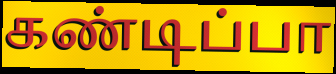
கண்டிப்பா